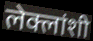
लेक्लांशी